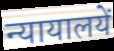
न्यायालयें